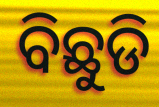
ବିଛୁଡି